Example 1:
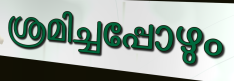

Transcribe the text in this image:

ശ്രമിച്ചപ്പോഴും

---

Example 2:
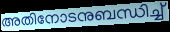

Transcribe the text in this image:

അതിനോടനുബന്ധിച്ച്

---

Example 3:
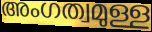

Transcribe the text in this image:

അംഗത്വമുള്ള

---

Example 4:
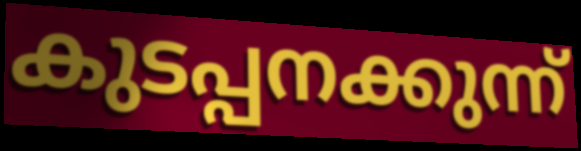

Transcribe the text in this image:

കുടപ്പനക്കുന്ന്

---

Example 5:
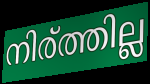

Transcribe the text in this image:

നിര്ത്തില്ല